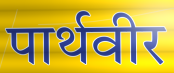
पार्थवीर